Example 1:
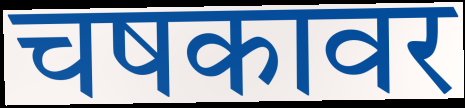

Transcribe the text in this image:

चषकावर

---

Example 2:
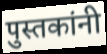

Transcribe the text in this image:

पुस्तकांनी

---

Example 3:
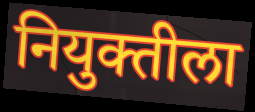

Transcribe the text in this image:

नियुक्तीला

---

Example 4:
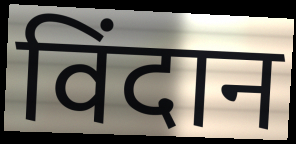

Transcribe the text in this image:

विंदान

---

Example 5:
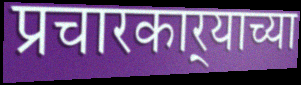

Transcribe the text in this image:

प्रचारकार्याच्या